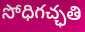
సోధిగచ్ఛతి